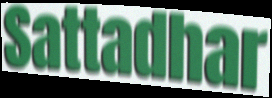
Sattadhar